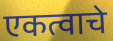
एकत्वाचे